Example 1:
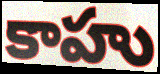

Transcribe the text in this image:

కాహు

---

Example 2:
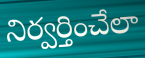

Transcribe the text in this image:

నిర్వర్తించేలా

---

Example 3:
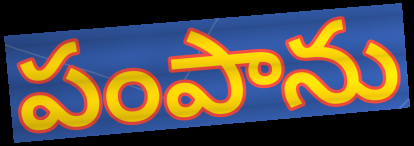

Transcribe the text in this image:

పంపాను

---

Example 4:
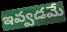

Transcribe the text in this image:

ఇవ్వడమే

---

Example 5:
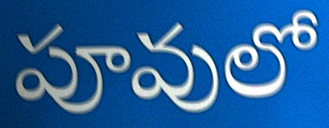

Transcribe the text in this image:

పూవులో